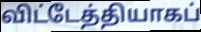
விட்டேத்தியாகப்